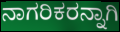
ನಾಗರಿಕರನ್ನಾಗಿ